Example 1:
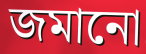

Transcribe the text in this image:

জমানো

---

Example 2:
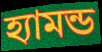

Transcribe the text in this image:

হ্যামন্ড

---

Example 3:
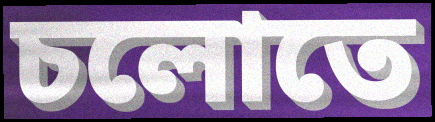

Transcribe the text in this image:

চলোতে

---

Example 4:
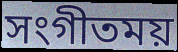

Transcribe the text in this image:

সংগীতময়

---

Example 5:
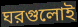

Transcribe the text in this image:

ঘরগুলোই